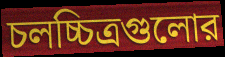
চলচ্চিত্রগুলোর